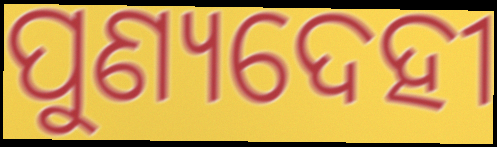
ପୁଣ୍ୟଦେହୀ